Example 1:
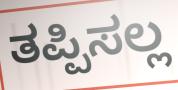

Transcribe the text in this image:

ತಪ್ಪಿಸಲ್ಲ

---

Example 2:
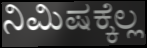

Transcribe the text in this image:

ನಿಮಿಷಕ್ಕೆಲ್ಲ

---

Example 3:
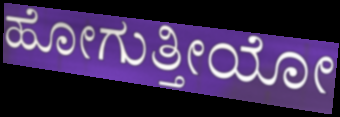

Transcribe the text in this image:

ಹೋಗುತ್ತೀಯೋ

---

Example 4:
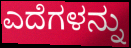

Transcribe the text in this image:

ಎದೆಗಳನ್ನು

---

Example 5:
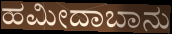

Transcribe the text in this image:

ಹಮೀದಾಬಾನು